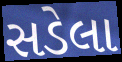
સડેલા